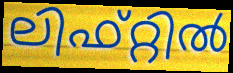
ലിഫ്റ്റിൽ